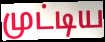
முட்டிய